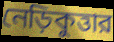
নেড়িকুত্তার